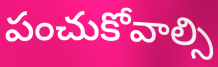
పంచుకోవాల్సి